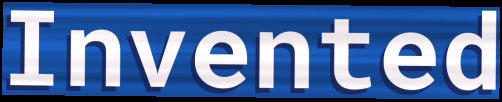
Invented